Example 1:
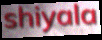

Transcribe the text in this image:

shiyala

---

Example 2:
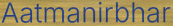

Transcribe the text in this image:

Aatmanirbhar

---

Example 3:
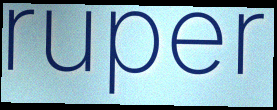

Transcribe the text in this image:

ruper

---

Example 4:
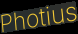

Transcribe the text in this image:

Photius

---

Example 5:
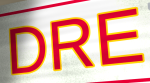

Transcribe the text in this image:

DRE